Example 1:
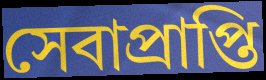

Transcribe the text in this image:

সেবাপ্রাপ্তি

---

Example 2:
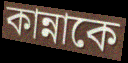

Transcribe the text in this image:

কান্নাকে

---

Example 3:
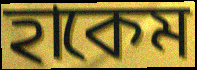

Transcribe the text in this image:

হাকেম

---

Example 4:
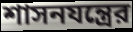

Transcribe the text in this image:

শাসনযন্ত্রের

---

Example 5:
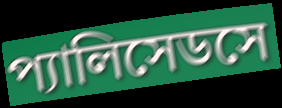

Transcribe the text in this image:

প্যালিসেডসে